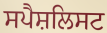
ਸਪੈਸ਼ਲਿਸਟ